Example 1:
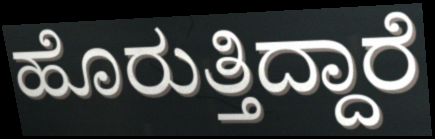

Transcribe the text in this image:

ಹೊರುತ್ತಿದ್ದಾರೆ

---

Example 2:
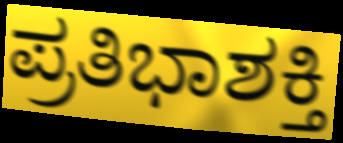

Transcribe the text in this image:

ಪ್ರತಿಭಾಶಕ್ತಿ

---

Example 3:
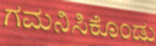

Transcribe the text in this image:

ಗಮನಿಸಿಕೊಂಡು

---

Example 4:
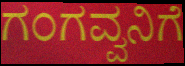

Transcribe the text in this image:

ಗಂಗವ್ವನಿಗೆ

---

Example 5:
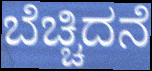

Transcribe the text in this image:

ಬೆಚ್ಚಿದನೆ